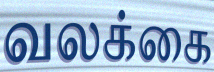
வலக்கை